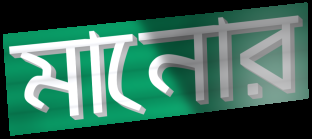
মানোর